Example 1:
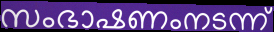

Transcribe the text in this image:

സംഭാഷണംനടന്ന്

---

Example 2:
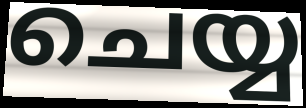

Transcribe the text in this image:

ചെയ്യ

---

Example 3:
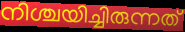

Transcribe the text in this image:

നിശ്ചയിച്ചിരുന്നത്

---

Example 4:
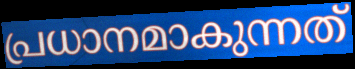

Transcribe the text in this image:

പ്രധാനമാകുന്നത്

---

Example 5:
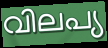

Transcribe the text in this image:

വിലപ്യ